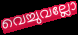
വെച്ചുവല്ലോ